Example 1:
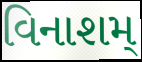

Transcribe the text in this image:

વિનાશમ્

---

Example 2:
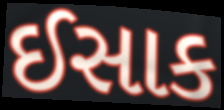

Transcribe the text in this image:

ઈસાક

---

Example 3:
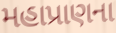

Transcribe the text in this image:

મહાપ્રાણના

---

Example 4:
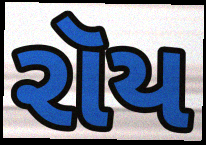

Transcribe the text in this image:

રૉય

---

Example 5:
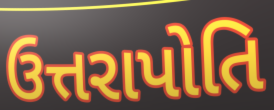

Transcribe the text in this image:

ઉત્તરાપોતિ